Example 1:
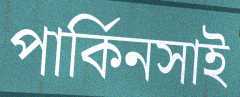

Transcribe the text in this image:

পার্কিনসাই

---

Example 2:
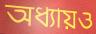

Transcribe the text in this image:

অধ্যায়ও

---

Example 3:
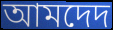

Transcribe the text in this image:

আমদেদ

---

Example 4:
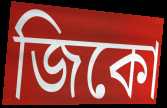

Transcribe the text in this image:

জিকো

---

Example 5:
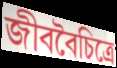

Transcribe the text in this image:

জীববৈচিত্রে